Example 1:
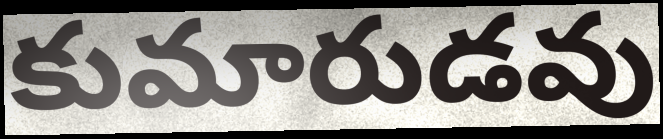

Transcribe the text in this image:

కుమారుడవు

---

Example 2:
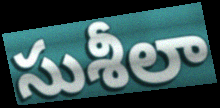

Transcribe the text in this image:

సుశీలా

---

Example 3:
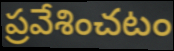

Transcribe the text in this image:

ప్రవేశించటం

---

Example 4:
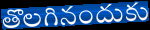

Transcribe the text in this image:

తొలగినందుకు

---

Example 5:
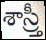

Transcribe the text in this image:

శాస్ర్తీ